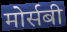
मोर्सबी